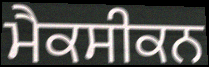
ਮੈਕਸੀਕਨ